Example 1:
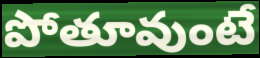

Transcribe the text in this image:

పోతూవుంటే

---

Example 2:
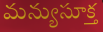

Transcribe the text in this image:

మన్యుసూక్త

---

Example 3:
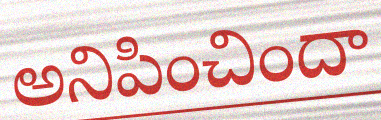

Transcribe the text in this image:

అనిపించిందా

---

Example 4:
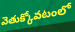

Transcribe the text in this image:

వెతుక్కోవటంలో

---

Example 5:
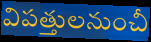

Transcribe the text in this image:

విపత్తులనుంచీ